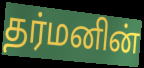
தர்மனின்